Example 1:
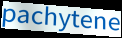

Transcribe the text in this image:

pachytene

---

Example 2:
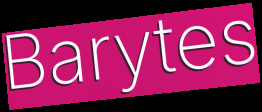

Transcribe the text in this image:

Barytes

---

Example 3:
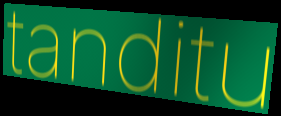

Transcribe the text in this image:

tanditu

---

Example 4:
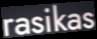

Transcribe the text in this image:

rasikas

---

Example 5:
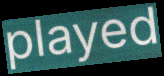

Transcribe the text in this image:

played